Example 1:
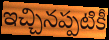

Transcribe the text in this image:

ఇచ్చినప్పటికీ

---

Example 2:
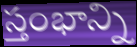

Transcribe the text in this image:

స్తంభాన్ని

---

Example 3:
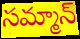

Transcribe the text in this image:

సమ్మాన్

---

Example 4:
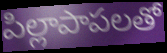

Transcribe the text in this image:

పిల్లాపాపలతో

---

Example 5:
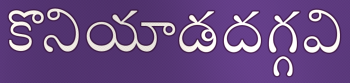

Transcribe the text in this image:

కొనియాడదగ్గవి